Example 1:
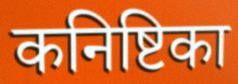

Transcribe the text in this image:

कनिष्टिका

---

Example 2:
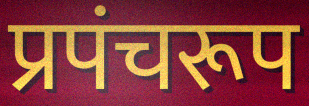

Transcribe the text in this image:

प्रपंचरूप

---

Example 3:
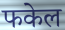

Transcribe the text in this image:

फकेल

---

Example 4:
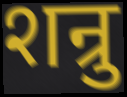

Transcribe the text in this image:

शन्रु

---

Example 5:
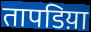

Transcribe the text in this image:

तापडिय़ा